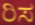
ರಿಸ